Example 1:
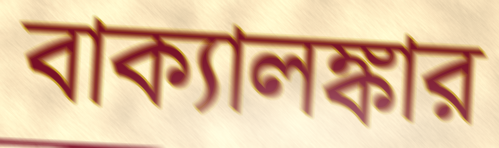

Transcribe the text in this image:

বাক্যালঙ্কার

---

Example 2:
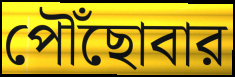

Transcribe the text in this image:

পৌঁছোবার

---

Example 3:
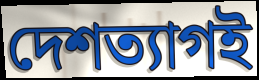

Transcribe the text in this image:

দেশত্যাগই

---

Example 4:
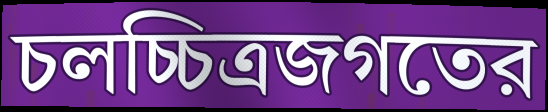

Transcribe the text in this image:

চলচ্চিত্রজগতের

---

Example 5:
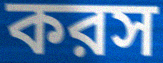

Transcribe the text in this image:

করস